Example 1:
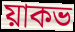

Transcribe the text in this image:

য়াকভ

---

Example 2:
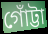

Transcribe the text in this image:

গোঁট্টা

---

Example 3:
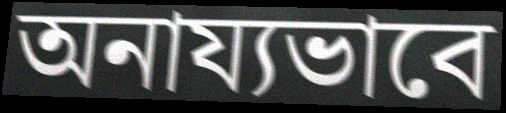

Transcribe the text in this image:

অনায্যভাবে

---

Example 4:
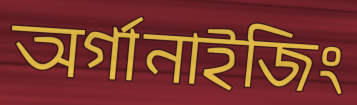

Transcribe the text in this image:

অর্গানাইজিং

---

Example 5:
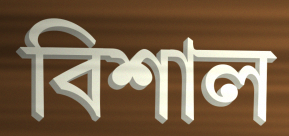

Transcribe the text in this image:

বিশাল